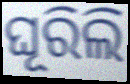
ଘୂରିଲି